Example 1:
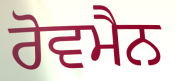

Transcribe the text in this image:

ਰੋਵਮੈਨ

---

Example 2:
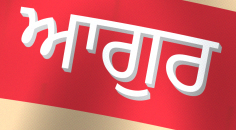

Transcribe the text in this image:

ਆਗੁਰ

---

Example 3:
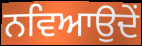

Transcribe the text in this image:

ਨਵਿਆਉਦੇਂ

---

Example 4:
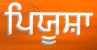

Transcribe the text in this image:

ਪਿਯੂਸ਼ਾ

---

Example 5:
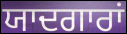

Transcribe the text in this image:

ਯਾਦਗਾਰਾਂ